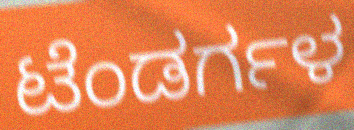
ಟೆಂಡರ್ಗಳ